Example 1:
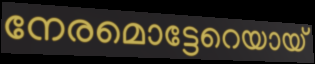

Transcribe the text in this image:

നേരമൊട്ടേറെയായ്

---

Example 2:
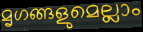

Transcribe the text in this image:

മൃഗങ്ങളുമെല്ലാം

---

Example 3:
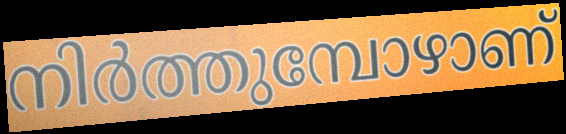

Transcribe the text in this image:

നിർത്തുമ്പോഴാണ്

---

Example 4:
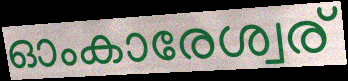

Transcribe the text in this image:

ഓംകാരേശ്വര്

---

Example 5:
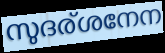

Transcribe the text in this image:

സുദര്ശനേന